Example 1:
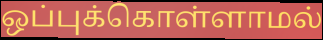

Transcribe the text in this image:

ஒப்புக்கொள்ளாமல்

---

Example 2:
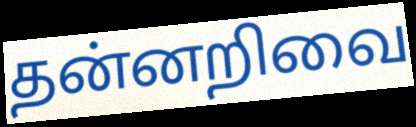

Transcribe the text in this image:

தன்னறிவை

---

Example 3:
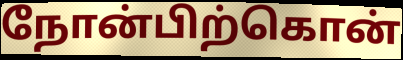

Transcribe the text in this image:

நோன்பிற்கொன்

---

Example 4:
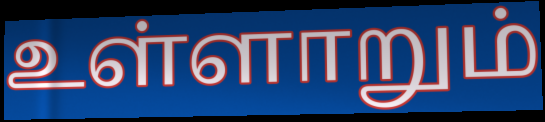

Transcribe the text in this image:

உள்ளாறும்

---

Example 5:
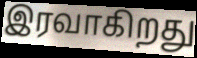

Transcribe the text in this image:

இரவாகிறது